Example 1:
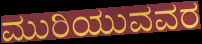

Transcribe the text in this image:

ಮುರಿಯುವವರ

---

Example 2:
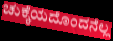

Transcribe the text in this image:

ಚುಕ್ಕೆಯದೊಂದನೆಲ್ಲ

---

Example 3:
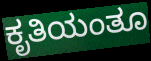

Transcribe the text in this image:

ಕೃತಿಯಂತೂ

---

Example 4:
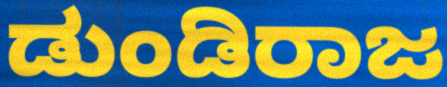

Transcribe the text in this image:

ಡುಂಡಿರಾಜ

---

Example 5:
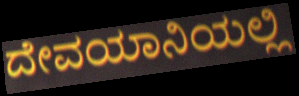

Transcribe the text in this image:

ದೇವಯಾನಿಯಲ್ಲಿ